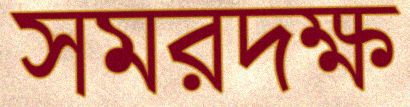
সমরদক্ষ